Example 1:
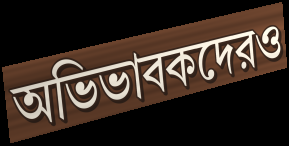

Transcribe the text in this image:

অভিভাবকদেরও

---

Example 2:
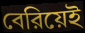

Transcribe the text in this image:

বেরিয়েই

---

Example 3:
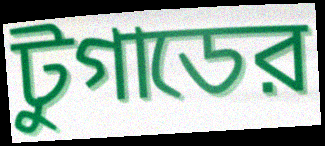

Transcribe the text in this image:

টুগাডের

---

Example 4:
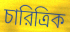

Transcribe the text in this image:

চারিত্রিক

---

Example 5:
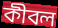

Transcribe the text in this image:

কীবল